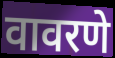
वावरणे